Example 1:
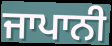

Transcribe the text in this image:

ਜਾਪਾਨੀ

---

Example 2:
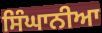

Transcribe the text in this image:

ਸਿੰਘਾਨੀਆ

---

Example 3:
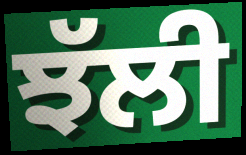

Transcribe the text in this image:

ਝੱਲੀ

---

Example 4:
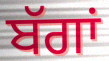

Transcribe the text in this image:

ਬੱਗਾਂ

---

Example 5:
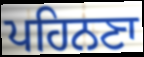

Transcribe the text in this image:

ਪਹਿਨਣਾ